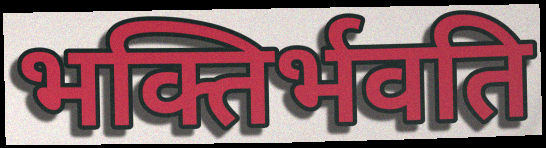
भक्तिर्भवति